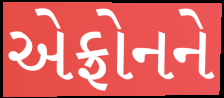
એફ્રોનને